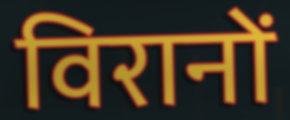
विरानों